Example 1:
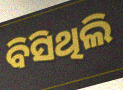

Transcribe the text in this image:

ବିସିଥିଲି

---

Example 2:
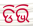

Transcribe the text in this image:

ଡିଭି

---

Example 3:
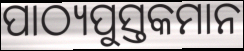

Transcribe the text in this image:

ପାଠ୍ୟପୁସ୍ତକମାନ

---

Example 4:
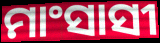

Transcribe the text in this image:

ମାଂସାସୀ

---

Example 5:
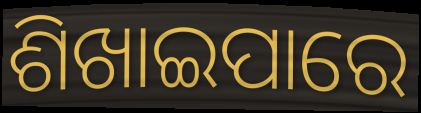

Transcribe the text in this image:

ଶିଖାଇପାରେ